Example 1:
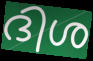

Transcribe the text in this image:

ദിശ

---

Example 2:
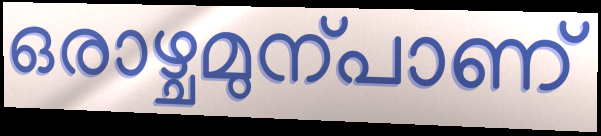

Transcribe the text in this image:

ഒരാഴ്ചമുന്പാണ്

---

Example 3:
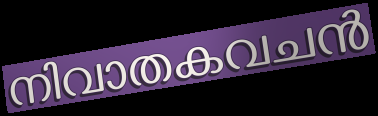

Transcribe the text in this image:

നിവാതകവചൻ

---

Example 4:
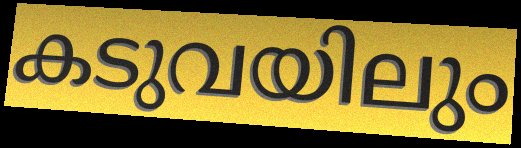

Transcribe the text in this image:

കടുവയിലും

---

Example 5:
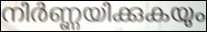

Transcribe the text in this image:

നിർണ്ണയിക്കുകയും